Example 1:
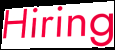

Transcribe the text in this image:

Hiring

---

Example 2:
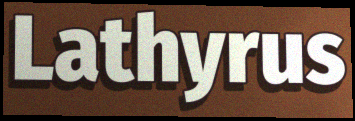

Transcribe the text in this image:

Lathyrus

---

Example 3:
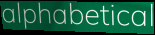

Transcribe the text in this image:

alphabetical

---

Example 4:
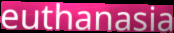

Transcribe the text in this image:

euthanasia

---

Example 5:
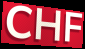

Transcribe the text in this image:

CHF